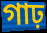
গাঢ়